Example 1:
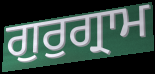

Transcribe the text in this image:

ਗੁਰੁਗ੍ਰਾਮ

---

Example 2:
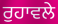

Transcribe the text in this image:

ਰੁਹਾਵਲੇ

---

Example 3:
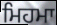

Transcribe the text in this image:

ਮਿਹਮਾ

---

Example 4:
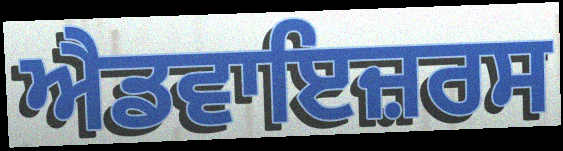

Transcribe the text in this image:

ਐਡਵਾਇਜ਼ਰਸ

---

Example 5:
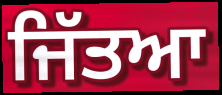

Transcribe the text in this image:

ਜਿੱਤਆ